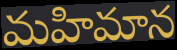
మహిమాన